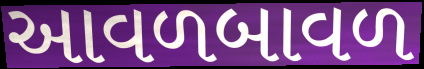
આવળબાવળ